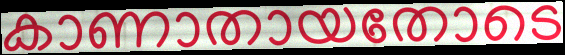
കാണാതായതോടെ